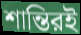
শান্তিরই